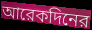
আরেকদিনের